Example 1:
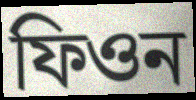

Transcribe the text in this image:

ফিওন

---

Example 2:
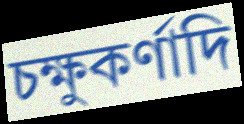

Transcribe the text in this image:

চক্ষুকর্ণাদি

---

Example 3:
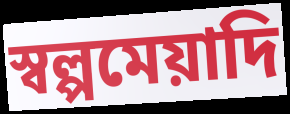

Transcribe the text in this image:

স্বল্পমেয়াদি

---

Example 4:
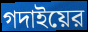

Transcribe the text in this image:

গদাইয়ের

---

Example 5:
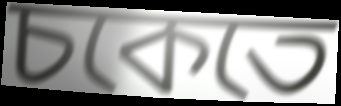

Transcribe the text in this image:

চকেতে